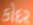
કોદર